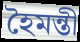
হৈমন্তী